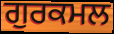
ਗੁਰਕਮਲ